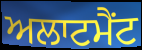
ਅਲਾਟਮੈਂਟ